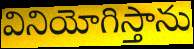
వినియోగిస్తాను